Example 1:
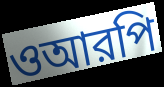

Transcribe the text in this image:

ওআরপি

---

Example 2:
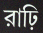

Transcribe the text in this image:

রাঢ়ি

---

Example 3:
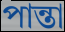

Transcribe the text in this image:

পান্তা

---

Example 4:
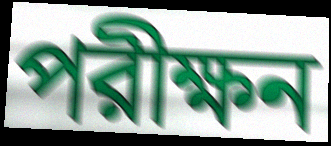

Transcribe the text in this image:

পরীক্ষন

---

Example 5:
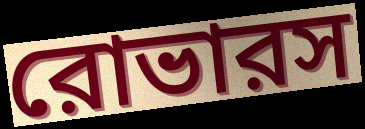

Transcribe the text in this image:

রোভারস